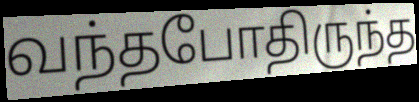
வந்தபோதிருந்த